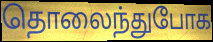
தொலைந்துபோக